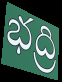
భద్రి